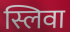
स्लिवा